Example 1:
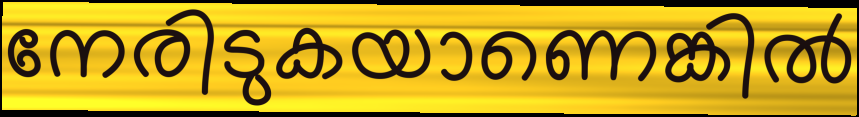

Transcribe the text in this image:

നേരിടുകയാണെങ്കിൽ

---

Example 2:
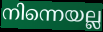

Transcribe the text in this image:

നിന്നെയല്ല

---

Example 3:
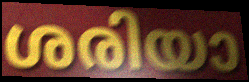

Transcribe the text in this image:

ശരിയാ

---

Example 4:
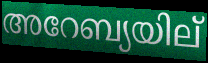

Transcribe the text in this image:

അറേബ്യയില്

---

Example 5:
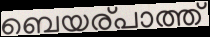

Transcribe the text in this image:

ബെയര്പാത്ത്